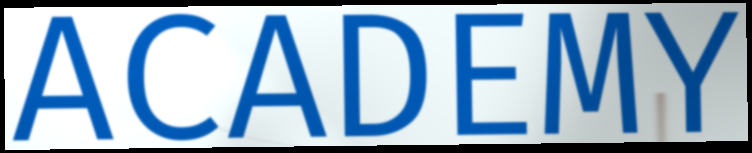
ACADEMY